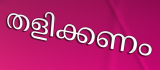
തളിക്കണം